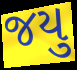
જયુ